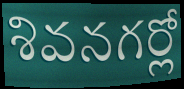
శివనగర్లో